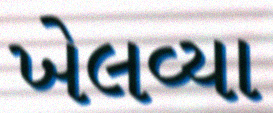
ખેલવ્યા